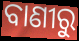
ବାଣୀରୁ